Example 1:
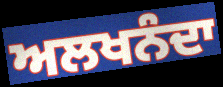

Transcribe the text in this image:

ਅਲਖਨੰਦਾ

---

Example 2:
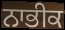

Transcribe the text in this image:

ਨਾਭੀਕ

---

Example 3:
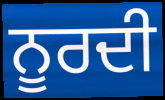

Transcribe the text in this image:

ਨੂਰਦੀ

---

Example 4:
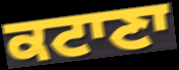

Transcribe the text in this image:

ਕਟਾਣਾ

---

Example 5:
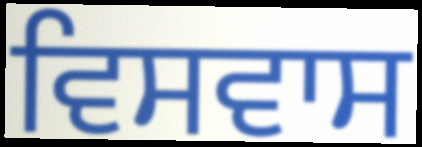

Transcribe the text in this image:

ਵਿਸਵਾਸ